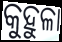
କୁହୁଳା